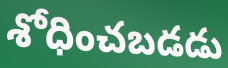
శోధించబడడు